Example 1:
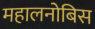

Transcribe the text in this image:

महालनोबिस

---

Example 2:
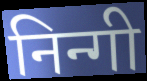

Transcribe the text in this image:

निन्गी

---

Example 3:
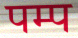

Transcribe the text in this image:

पम्प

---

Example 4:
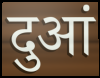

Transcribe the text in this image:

दुआं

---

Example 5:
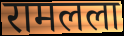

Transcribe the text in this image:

रामलला